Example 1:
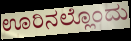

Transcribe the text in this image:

ಊರಿನಲ್ಲೊಂದು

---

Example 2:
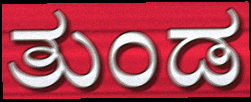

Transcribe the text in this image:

ತುಂಡ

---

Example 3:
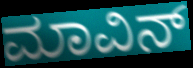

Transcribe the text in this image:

ಮಾವಿನ್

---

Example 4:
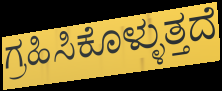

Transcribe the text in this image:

ಗ್ರಹಿಸಿಕೊಳ್ಳುತ್ತದೆ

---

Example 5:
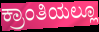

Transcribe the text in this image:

ಕ್ರಾಂತಿಯಲ್ಲೂ